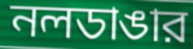
নলডাঙার